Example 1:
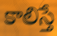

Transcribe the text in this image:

కాలిస్తే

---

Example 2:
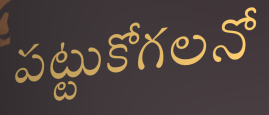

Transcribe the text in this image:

పట్టుకోగలనో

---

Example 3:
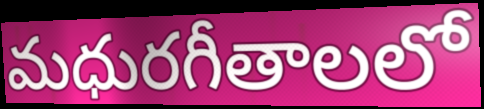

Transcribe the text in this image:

మధురగీతాలలో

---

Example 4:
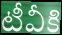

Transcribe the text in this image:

టీవీకి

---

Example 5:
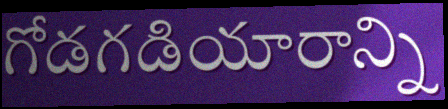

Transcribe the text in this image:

గోడగడియారాన్ని